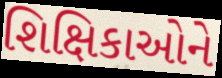
શિક્ષિકાઓને